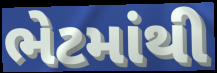
ભેટમાંથી